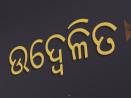
ଉଦ୍ବେଳିତ